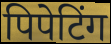
पिपेटिंग